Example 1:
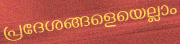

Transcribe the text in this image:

പ്രദേശങ്ങളെയെല്ലാം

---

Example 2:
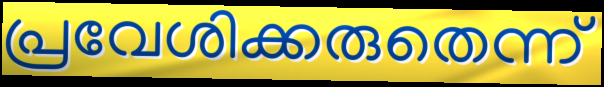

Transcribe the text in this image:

പ്രവേശിക്കരുതെന്ന്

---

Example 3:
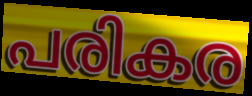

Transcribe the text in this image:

പരികര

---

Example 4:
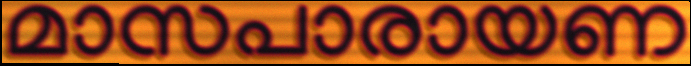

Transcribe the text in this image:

മാസപാരായണ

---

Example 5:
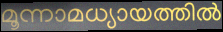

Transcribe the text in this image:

മൂന്നാമധ്യായത്തിൽ